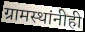
ग्रामस्थांनीही